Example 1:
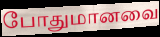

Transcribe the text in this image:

போதுமானவை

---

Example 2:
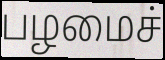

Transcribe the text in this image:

பழமைச்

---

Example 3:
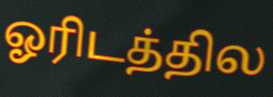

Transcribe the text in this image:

ஓரிடத்தில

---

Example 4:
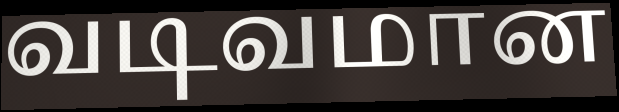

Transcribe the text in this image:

வடிவமான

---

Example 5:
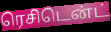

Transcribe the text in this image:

ரெசிடென்ட்